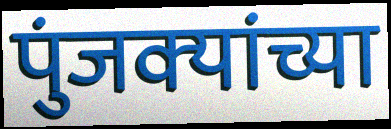
पुंजक्यांच्या